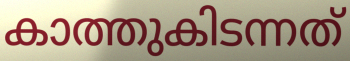
കാത്തുകിടന്നത്